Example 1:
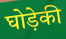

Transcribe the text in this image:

घोड़ेकी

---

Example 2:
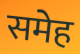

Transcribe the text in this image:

समेह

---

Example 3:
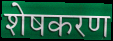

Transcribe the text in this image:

शेषकरण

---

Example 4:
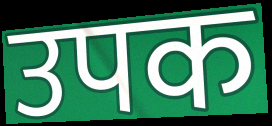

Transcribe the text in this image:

उपक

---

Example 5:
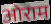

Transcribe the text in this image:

ओराम